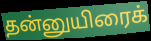
தன்னுயிரைக்